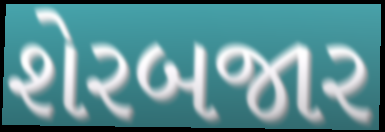
શેરબજાર